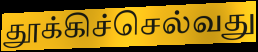
தூக்கிச்செல்வது